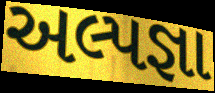
અલ્પજ્ઞા